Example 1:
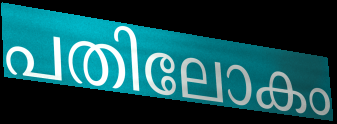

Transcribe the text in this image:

പതിലോകം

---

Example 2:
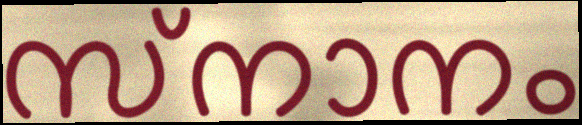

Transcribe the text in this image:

സ്‌നാനം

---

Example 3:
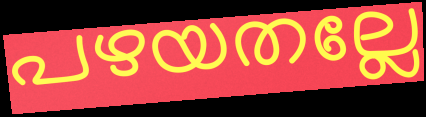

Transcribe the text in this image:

പഴയതല്ലേ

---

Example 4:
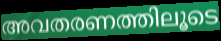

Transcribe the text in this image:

അവതരണത്തിലൂടെ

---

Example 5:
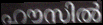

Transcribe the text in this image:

ഹൗസിൽ